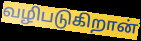
வழிபடுகிறான்